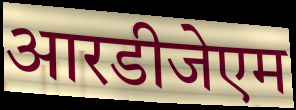
आरडीजेएम